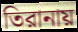
তিরানায়